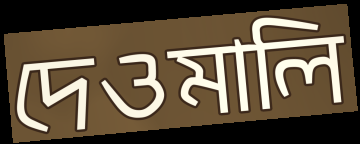
দেওমালি